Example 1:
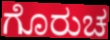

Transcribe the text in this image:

ಗೊರುಚ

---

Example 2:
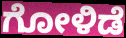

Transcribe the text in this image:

ಗೋಳಿಡೆ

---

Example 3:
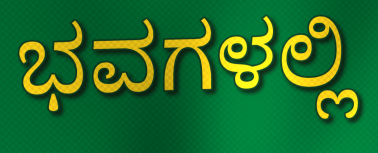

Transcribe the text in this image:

ಭವಗಳಲ್ಲಿ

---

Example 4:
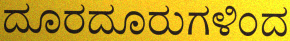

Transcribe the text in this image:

ದೂರದೂರುಗಳಿಂದ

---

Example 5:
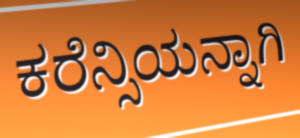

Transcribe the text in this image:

ಕರೆನ್ಸಿಯನ್ನಾಗಿ